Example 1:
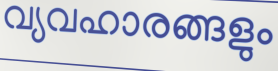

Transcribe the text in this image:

വ്യവഹാരങ്ങളും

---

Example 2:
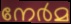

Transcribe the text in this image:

നേർമ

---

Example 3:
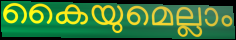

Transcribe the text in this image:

കൈയുമെല്ലാം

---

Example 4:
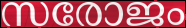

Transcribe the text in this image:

സരോജം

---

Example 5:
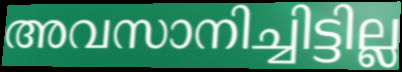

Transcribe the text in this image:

അവസാനിച്ചിട്ടില്ല